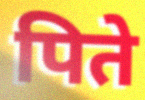
पिते